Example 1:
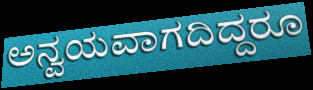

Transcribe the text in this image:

ಅನ್ವಯವಾಗದಿದ್ದರೂ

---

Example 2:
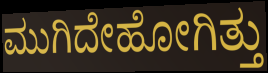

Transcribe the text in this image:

ಮುಗಿದೇಹೋಗಿತ್ತು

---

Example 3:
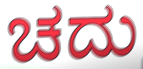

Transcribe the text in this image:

ಚದು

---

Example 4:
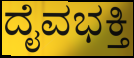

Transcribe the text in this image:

ದೈವಭಕ್ತಿ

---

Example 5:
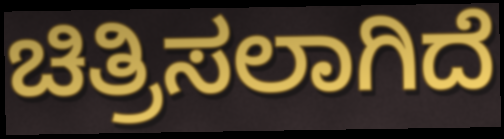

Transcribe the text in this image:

ಚಿತ್ರಿಸಲಾಗಿದೆ